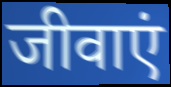
जीवाएं